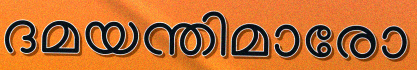
ദമയന്തിമാരോ